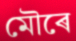
মৌৰে